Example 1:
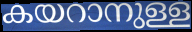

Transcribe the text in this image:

കയറാനുള്ള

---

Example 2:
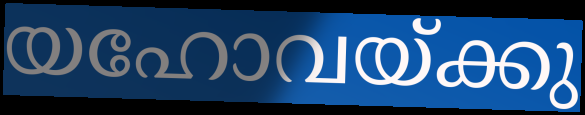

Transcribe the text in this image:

യഹോവയ്ക്കു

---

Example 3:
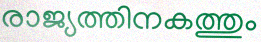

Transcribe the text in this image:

രാജ്യത്തിനകത്തും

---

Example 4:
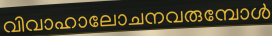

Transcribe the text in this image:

വിവാഹാലോചനവരുമ്പോൾ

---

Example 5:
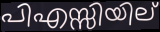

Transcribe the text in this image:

പിഎസ്സിയില്